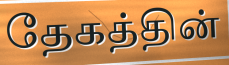
தேகத்தின்